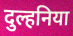
दुल्हनिया